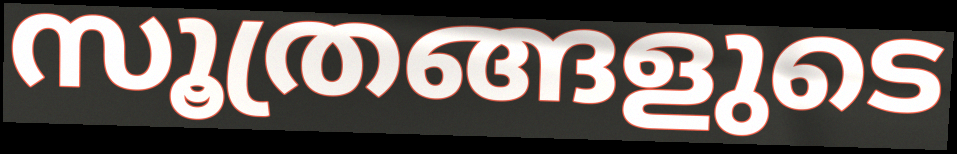
സൂത്രങ്ങളുടെ